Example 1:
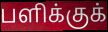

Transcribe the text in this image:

பளிக்குக்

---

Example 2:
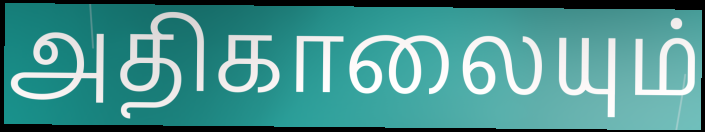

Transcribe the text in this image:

அதிகாலையும்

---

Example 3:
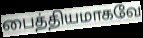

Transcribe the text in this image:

பைத்தியமாகவே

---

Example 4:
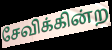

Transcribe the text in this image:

சேவிக்கின்ற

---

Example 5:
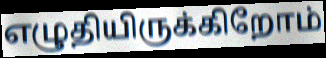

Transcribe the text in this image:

எழுதியிருக்கிறோம்